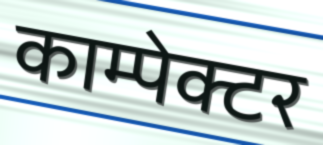
काम्पेक्टर